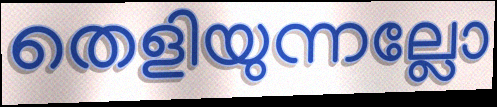
തെളിയുന്നല്ലോ